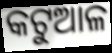
କଟୁଆଳ